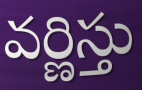
వర్ణిస్తు